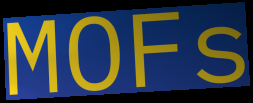
MOFs